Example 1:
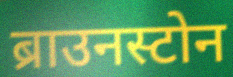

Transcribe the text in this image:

ब्राउनस्टोन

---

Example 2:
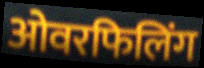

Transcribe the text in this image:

ओवरफिलिंग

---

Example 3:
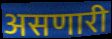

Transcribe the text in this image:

असणारी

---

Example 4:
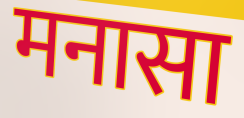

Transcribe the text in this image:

मनासा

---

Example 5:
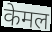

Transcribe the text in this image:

केमल